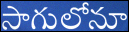
సాగులోనూ